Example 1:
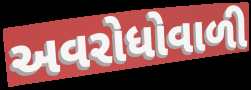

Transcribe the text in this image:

અવરોધોવાળી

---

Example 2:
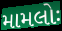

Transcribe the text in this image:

મામલોઃ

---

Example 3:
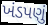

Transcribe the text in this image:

ખંડપણું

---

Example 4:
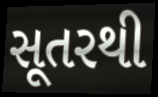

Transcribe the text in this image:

સૂતરથી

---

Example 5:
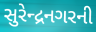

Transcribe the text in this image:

સુરેન્દ્રનગરની